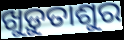
ଖୁଡ଼ୁତାଶୁର